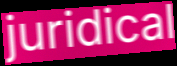
juridical